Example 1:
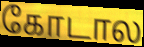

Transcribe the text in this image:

கோடால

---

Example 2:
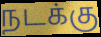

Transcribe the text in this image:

நடக்கு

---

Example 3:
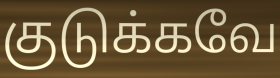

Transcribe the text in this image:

குடுக்கவே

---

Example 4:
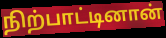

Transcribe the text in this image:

நிற்பாட்டினான்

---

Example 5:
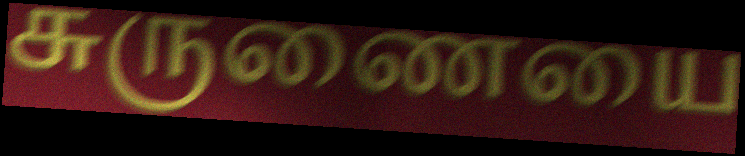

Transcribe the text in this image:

சுருணையை